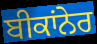
ਬੀਕਾਂਨੇਰ